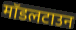
मॉडलटाउन